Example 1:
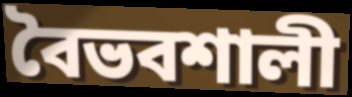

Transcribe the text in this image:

বৈভবশালী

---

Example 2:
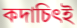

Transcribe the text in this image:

কদাচিৎই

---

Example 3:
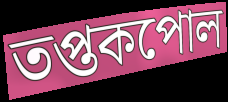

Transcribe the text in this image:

তপ্তকপোল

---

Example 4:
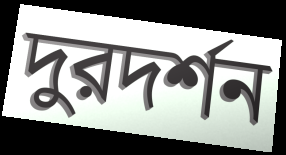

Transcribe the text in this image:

দুরদর্শন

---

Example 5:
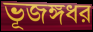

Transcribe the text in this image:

ভূজঙ্গধর